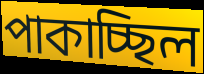
পাকাচ্ছিল